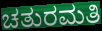
ಚತುರಮತಿ